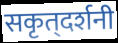
सकृत्‌दर्शनी